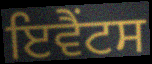
ਇਵੈਂਟਸ